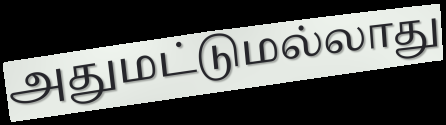
அதுமட்டுமல்லாது